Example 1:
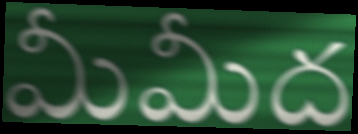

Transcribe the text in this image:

మీమీద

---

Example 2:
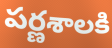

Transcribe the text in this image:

పర్ణశాలకి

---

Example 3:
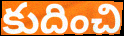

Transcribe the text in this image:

కుదించి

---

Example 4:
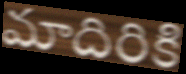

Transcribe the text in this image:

మాదిరికి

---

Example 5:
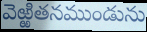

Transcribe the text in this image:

వెఱ్ఱితనముండును